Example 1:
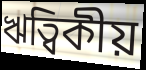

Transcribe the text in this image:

ঋত্বিকীয়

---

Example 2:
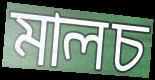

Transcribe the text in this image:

মালচ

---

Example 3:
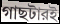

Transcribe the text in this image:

গাছটারই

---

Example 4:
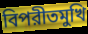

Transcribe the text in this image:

বিপরীতমুখি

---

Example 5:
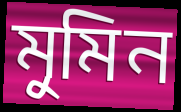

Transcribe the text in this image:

মুমিন